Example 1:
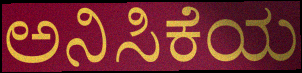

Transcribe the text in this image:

ಅನಿಸಿಕೆಯ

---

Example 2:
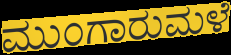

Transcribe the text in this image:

ಮುಂಗಾರುಮಳೆ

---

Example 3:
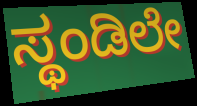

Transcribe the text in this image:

ಸ್ಥಂಡಿಲೇ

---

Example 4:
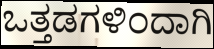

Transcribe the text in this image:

ಒತ್ತಡಗಳಿಂದಾಗಿ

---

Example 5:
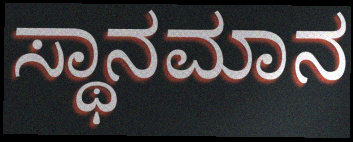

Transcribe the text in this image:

ಸ್ಥಾನಮಾನ